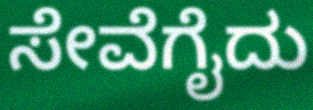
ಸೇವೆಗೈದು